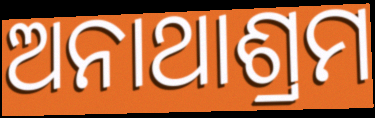
ଅନାଥାଶ୍ରମ